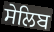
ਸੇਲਿਬ